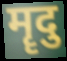
मॄदु